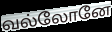
வல்லோனே